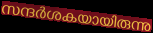
സന്ദർശകയായിരുന്നു